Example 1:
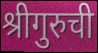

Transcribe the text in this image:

श्रीगुरुची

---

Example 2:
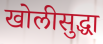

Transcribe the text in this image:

खोलीसुद्धा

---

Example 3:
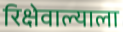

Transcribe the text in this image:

रिक्षेवाल्याला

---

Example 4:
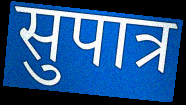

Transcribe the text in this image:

सुपात्र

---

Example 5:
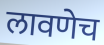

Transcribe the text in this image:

लावणेच